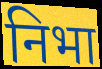
निभा